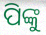
ପିଙ୍କୁ